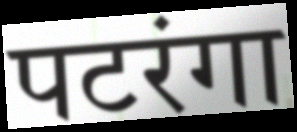
पटरंगा